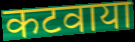
कटवाया